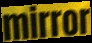
mirror